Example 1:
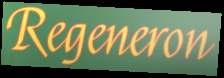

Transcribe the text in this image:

Regeneron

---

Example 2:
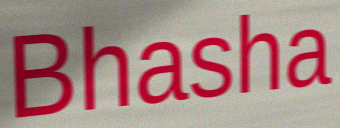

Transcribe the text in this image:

Bhasha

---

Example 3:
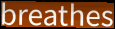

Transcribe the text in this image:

breathes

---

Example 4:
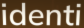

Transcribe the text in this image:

identi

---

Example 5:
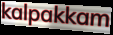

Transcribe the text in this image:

kalpakkam